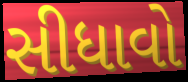
સીધાવો